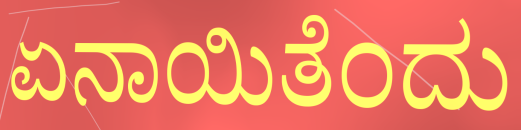
ಏನಾಯಿತೆಂದು